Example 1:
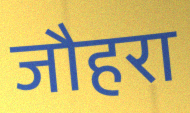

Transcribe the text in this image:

जौहरा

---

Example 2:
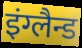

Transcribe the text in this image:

इंग्लैन्ड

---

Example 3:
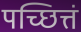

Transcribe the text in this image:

पच्छित्तं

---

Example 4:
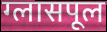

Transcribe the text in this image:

ग्लासपूल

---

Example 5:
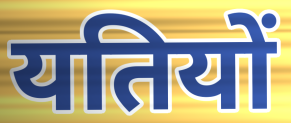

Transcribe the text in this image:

यतियों